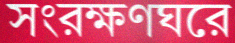
সংরক্ষণঘরে